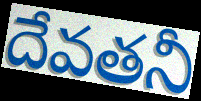
దేవతనీ